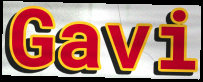
Gavi